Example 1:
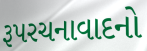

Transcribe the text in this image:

રૂપરચનાવાદનો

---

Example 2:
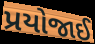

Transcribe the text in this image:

પ્રયોજાઈ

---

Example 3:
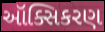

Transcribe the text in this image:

ઑક્સિકરણ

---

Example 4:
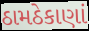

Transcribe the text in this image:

ઠામઠેકાણાં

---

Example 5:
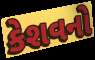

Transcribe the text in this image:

કેશવનો